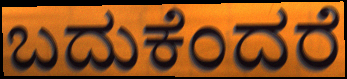
ಬದುಕೆಂದರೆ